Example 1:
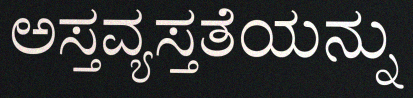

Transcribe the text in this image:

ಅಸ್ತವ್ಯಸ್ತತೆಯನ್ನು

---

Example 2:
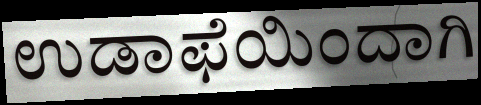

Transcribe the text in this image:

ಉಡಾಫೆಯಿಂದಾಗಿ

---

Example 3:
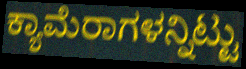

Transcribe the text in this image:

ಕ್ಯಾಮೆರಾಗಳನ್ನಿಟ್ಟು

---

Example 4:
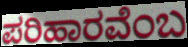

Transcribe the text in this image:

ಪರಿಹಾರವೆಂಬ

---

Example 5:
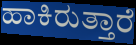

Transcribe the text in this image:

ಹಾಕಿರುತ್ತಾರೆ